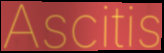
Ascitis